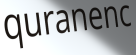
quranenc